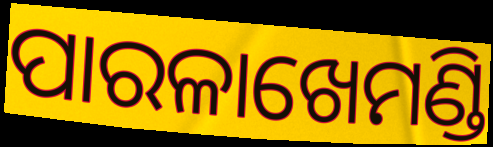
ପାରଳାଖେମଣ୍ଡି